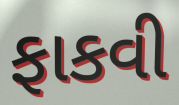
ફાકવી